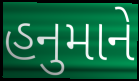
હનુમાને